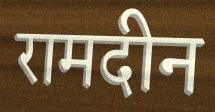
रामदीन